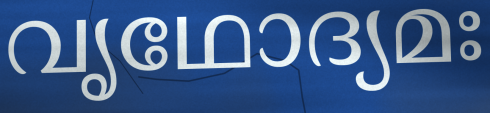
വൃഥോദ്യമഃ